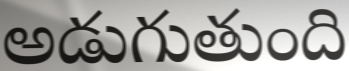
అడుగుతుంది